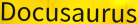
Docusaurus